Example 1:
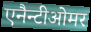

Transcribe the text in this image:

एनैन्टीओमर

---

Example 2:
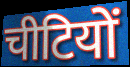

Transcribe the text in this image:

चीटियों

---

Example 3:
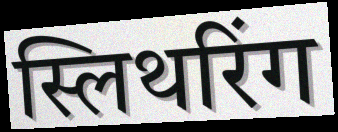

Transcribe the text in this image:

स्लिथरिंग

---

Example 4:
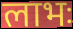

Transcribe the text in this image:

लाभः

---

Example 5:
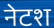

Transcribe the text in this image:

नेटश